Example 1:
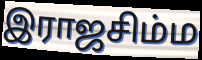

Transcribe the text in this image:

இராஜசிம்ம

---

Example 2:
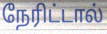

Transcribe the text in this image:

நேரிட்டால்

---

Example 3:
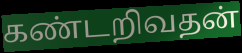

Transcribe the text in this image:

கண்டறிவதன்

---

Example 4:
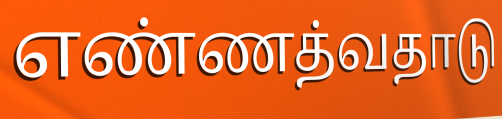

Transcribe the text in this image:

எண்ணத்வதாடு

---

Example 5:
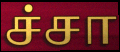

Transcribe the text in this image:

ச்சா